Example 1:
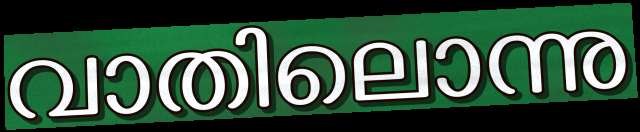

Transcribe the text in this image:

വാതിലൊന്നു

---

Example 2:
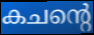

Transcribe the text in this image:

കചന്റെ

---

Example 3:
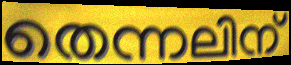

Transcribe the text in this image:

തെന്നലിന്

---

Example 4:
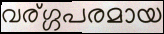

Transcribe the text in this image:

വര്ഗ്ഗപരമായ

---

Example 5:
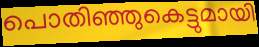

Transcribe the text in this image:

പൊതിഞ്ഞുകെട്ടുമായി